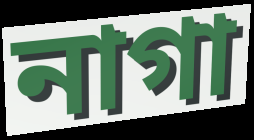
নাগা